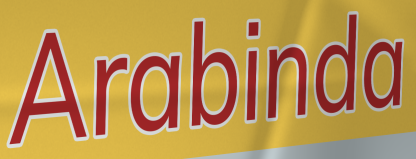
Arabinda